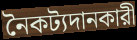
নৈকট্যদানকারী